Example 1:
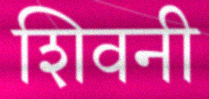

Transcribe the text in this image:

शिवनी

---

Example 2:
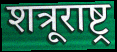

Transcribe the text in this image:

शत्रूराष्ट्र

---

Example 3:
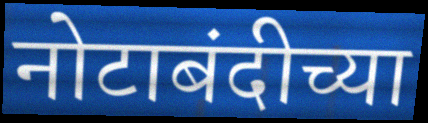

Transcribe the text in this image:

नोटाबंदीच्या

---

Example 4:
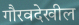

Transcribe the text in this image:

गौरवदेखील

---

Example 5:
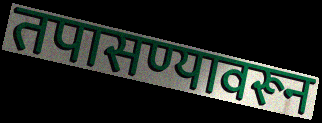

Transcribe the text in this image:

तपासण्यावरून